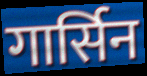
गार्सिन